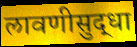
लावणीसुद्धा